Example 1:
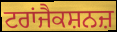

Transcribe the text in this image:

ਟਰਾਂਜੈਕਸ਼ਨਜ਼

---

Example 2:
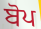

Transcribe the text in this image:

ਬੋਪ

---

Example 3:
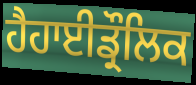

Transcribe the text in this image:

ਹੈਹਾਈਡ੍ਰੌਲਿਕ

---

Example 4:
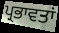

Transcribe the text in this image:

ਪ੍ਰਭਾਵਤਾਂ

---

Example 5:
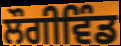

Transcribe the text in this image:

ਲੌਗੀਵਿੰਡ